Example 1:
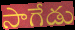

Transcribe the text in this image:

సాగేడు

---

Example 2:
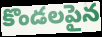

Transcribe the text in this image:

కొండలపైన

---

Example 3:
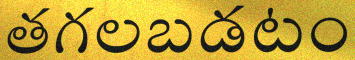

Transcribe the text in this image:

తగలబడటం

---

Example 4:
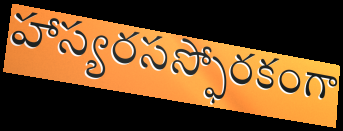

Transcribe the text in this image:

హాస్యరసస్ఫోరకంగా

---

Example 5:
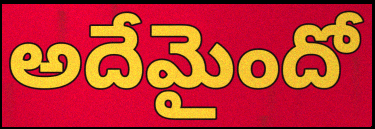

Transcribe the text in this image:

అదేమైందో